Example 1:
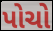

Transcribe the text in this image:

પોચો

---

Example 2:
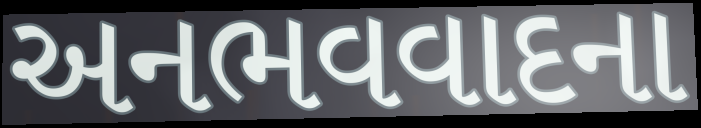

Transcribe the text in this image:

અનભવવાદના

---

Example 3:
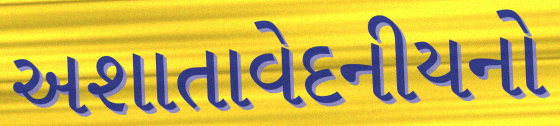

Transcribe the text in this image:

અશાતાવેદનીયનો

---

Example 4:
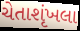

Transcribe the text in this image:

ચેતાશૃંખલા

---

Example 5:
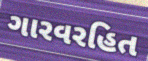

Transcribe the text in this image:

ગારવરહિત